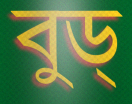
বুড্